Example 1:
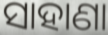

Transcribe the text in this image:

ସାହାଣା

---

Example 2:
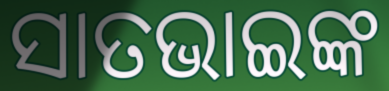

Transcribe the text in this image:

ସାତଭାଇଙ୍କ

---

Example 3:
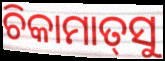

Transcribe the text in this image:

ଚିକାମାତ୍‌ସୁ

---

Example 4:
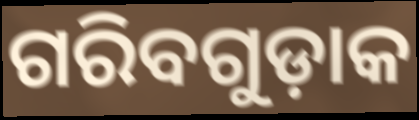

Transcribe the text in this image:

ଗରିବଗୁଡ଼ାକ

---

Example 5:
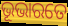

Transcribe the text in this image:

ଭୂଭାରତେ